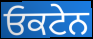
ਓਕਟੇਨ